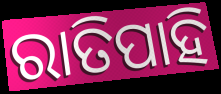
ରାତିପାହି